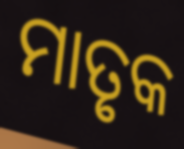
ମାତୃକ